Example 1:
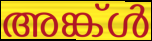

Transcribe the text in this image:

അങ്ക്ൾ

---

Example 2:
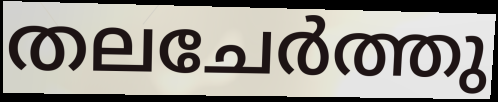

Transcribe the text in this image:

തലചേർത്തു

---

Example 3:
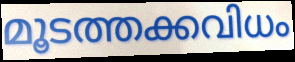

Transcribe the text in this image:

മൂടത്തക്കവിധം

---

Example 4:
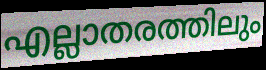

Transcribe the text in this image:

എല്ലാതരത്തിലും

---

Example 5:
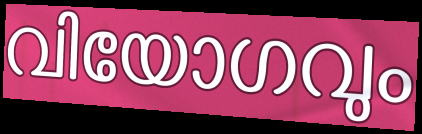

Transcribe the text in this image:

വിയോഗവും